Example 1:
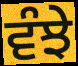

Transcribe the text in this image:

ਵੰਝੇ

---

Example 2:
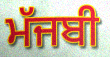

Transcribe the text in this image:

ਮੱਜਬੀ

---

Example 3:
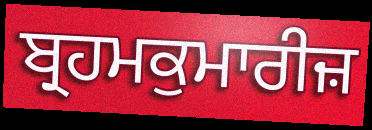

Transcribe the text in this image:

ਬ੍ਰਹਮਕੁਮਾਰੀਜ਼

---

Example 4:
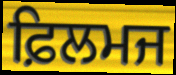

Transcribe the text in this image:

ਫ਼ਿਲਮਜ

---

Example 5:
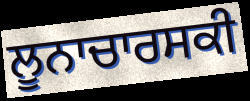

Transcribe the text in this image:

ਲੂਨਾਚਾਰਸਕੀ